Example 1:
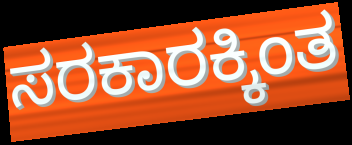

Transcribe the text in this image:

ಸರಕಾರಕ್ಕಿಂತ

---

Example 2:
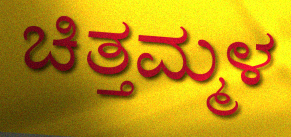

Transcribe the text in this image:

ಚಿತ್ತಮ್ಮಳ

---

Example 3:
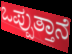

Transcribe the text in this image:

ಒಪ್ಪುತ್ತಾನೆ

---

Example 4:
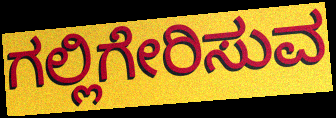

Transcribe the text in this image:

ಗಲ್ಲಿಗೇರಿಸುವ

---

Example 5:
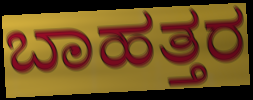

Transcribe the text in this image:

ಬಾಹತ್ತರ